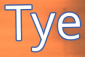
Tye